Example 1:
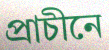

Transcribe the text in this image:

প্ৰাচীনে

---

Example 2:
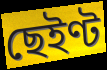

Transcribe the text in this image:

ছেইণ্ট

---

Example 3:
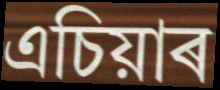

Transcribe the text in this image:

এচিয়াৰ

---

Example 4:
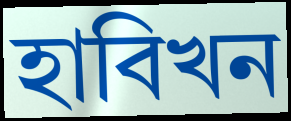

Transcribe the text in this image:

হাবিখন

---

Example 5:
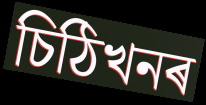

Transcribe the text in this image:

চিঠিখনৰ